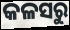
କଳସରୁ